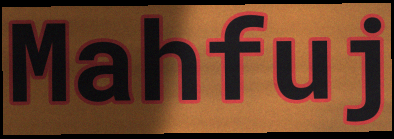
Mahfuj